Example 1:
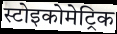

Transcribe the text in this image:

स्टोइकोमेट्रिक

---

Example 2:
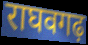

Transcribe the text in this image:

राघवगढ़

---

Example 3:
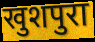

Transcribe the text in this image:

खुशपुरा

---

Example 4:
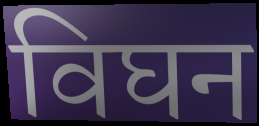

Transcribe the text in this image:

विघन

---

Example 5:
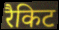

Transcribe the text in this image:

रैकिट